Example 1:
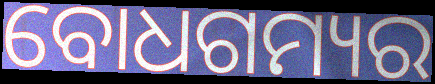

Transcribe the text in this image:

ବୋଧଗମ୍ୟର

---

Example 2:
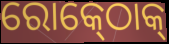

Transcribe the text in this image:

ରୋକ୍‍ଠୋକ୍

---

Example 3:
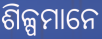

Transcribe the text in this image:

ଶିଳ୍ପମାନେ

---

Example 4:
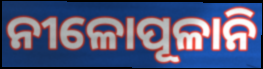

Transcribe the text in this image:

ନୀଳୋପୂଳାନି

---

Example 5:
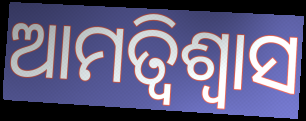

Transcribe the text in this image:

ଆମତ୍ବିଶ୍ୱାସ